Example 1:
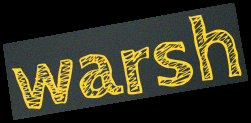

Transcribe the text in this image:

warsh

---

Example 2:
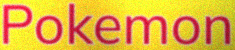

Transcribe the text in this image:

Pokemon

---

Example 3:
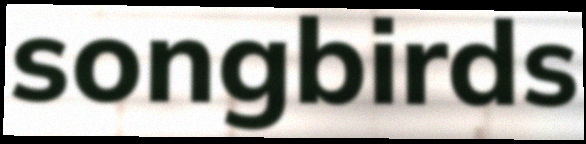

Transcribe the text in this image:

songbirds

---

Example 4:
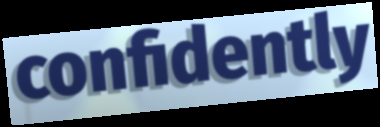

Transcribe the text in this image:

confidently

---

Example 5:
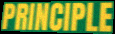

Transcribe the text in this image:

PRINCIPLE